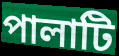
পালাটি